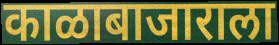
काळाबाजाराला